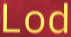
Lod